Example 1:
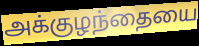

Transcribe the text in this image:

அக்குழந்தையை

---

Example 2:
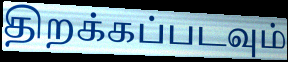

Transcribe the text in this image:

திறக்கப்படவும்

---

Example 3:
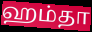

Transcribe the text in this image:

ஹம்தா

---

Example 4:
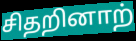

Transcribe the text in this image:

சிதறினாற்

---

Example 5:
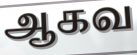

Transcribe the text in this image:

ஆகவ